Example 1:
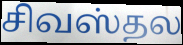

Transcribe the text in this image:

சிவஸ்தல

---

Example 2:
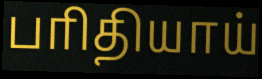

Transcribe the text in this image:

பரிதியாய்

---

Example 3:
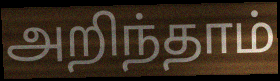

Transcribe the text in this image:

அறிந்தாம்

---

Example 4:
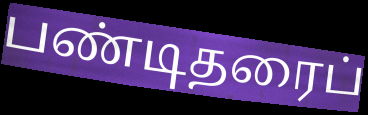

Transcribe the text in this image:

பண்டிதரைப்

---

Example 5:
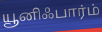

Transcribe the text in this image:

யூனிஃபார்ம்